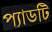
প্যাডটি